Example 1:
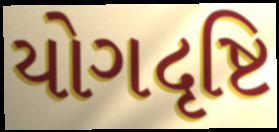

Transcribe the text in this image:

યોગદૃષ્ટિ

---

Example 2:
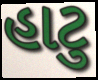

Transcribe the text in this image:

હાટુ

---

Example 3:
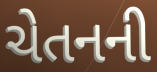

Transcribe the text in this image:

ચેતનની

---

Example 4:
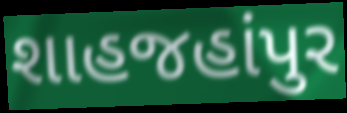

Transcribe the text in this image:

શાહજહાંપુર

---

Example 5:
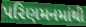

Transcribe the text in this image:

પરિણમનમાંથી